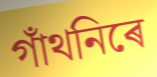
গাঁথনিৰে